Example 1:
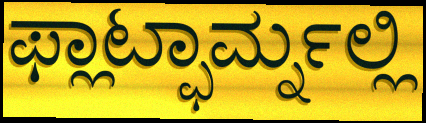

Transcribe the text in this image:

ಫ್ಲಾಟ್ಫಾರ್ಮ್ನಲ್ಲಿ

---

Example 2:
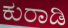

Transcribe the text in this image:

ಕುರಾಡಿ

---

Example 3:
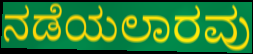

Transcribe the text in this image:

ನಡೆಯಲಾರವು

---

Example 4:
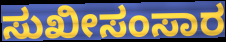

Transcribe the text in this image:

ಸುಖೀಸಂಸಾರ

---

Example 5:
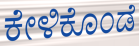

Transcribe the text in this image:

ಕೇಳಿಕೊಂಡೆ